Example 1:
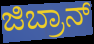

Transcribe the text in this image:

ಜಿಬ್ರಾನ್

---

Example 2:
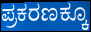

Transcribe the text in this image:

ಪ್ರಕರಣಕ್ಕೂ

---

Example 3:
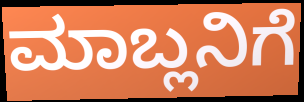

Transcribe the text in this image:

ಮಾಬ್ಲನಿಗೆ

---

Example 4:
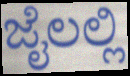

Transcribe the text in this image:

ಜೈಲಲ್ಲಿ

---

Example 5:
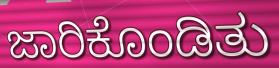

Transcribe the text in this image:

ಜಾರಿಕೊಂಡಿತು